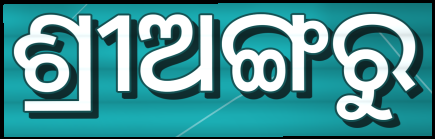
ଶ୍ରୀଅଙ୍ଗରୁ